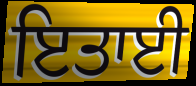
ਇਤਾਈ